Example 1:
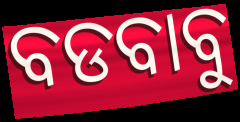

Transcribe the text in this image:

ବଡବାବୁ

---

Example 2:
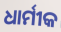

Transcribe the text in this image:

ଧାର୍ମୀକ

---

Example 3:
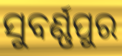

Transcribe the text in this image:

ସୁବର୍ଣ୍ଣପୁର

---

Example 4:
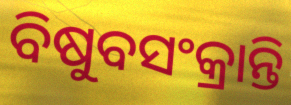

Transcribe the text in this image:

ବିଷୁବସଂକ୍ରାନ୍ତି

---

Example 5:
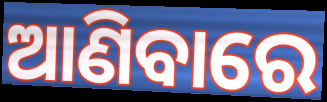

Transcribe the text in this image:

ଆଣିବାରେ